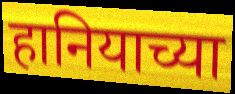
हानियाच्या